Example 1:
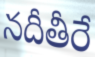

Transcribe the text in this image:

నదీతీరే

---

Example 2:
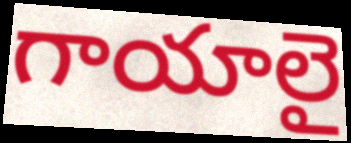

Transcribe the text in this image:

గాయాలై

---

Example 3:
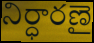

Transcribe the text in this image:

నిర్ధారణై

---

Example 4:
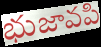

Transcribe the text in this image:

భుజావపి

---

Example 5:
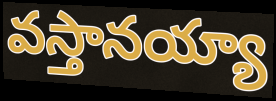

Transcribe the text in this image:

వస్తానయ్యా